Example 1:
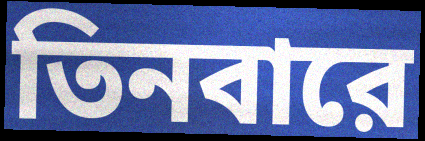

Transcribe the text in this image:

তিনবারে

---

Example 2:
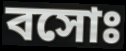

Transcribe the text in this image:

বসোঃ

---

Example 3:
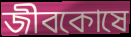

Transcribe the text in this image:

জীবকোষে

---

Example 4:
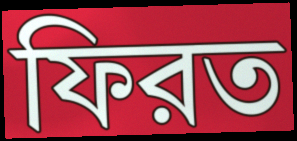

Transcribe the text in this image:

ফিরত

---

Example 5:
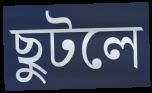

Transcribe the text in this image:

ছুটলে